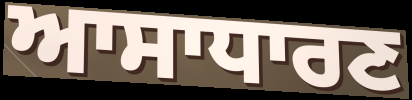
ਆਸਾਧਾਰਣ